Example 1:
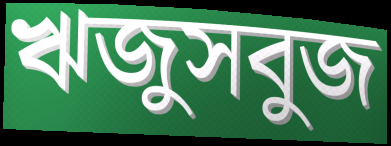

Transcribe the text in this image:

ঋজুসবুজ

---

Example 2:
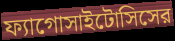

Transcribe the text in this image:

ফ্যাগোসাইটোসিসের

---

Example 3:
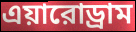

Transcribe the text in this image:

এয়ারোড্রাম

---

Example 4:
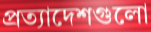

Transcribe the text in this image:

প্রত্যাদেশগুলো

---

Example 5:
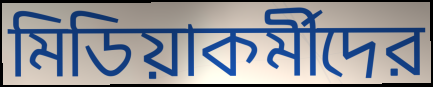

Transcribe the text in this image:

মিডিয়াকর্মীদের